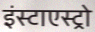
इंस्टाएस्ट्रो